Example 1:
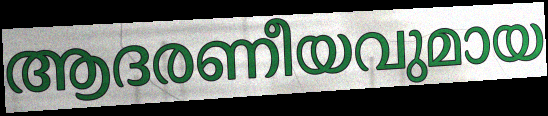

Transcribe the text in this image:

ആദരണീയവുമായ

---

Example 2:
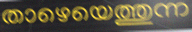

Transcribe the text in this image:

താഴെയെത്തുന്ന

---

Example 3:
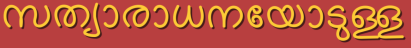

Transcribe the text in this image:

സത്യാരാധനയോടുള്ള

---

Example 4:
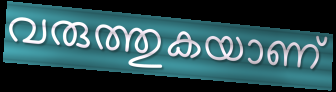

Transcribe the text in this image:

വരുത്തുകയാണ്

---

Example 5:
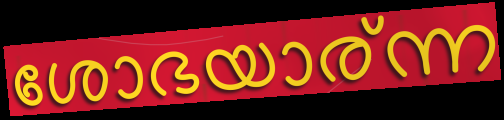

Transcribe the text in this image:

ശോഭയാര്ന്ന